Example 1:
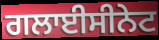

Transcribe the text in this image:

ਗਲਾਈਸੀਨੇਟ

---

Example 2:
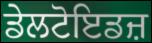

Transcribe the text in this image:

ਡੇਲਟੋਇਡਜ਼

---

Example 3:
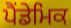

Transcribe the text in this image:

ਪੈਂਡੇਮਿਕ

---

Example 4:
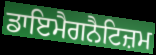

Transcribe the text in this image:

ਡਾਇਮੈਗਨੈਟਿਜ਼ਮ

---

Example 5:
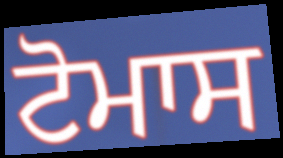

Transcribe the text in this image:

ਟੋਮਾਸ